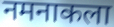
नमनाकला